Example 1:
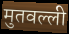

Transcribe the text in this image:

मुतवल्ली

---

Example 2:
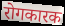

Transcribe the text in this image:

रोगकारक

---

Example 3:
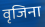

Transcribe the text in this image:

वृजिना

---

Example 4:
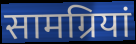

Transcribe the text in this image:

सामग्रियां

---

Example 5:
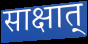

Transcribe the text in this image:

साक्षात्